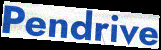
Pendrive